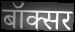
बॉक्सर